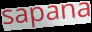
sapana